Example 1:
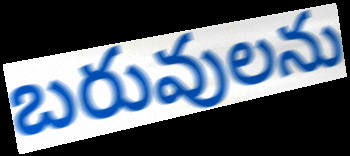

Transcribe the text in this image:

బరువులను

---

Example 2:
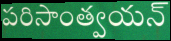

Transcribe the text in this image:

పరిసాంత్వయన్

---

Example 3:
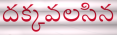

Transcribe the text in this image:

దక్కవలసిన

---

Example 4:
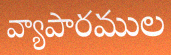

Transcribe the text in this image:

వ్యాపారముల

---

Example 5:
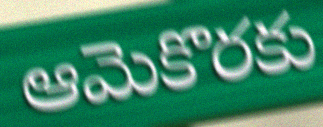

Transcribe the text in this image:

ఆమెకొరకు